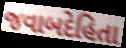
જવાબદેહિતા